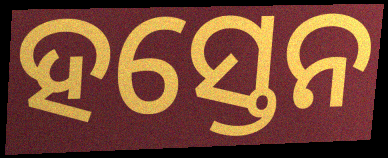
ହସ୍ତେନ